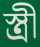
স্ত্ৰী